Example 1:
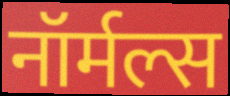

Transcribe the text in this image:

नॉर्मल्स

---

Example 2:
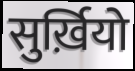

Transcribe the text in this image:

सुर्ख़ियो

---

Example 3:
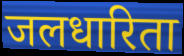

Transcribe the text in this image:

जलधारिता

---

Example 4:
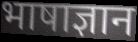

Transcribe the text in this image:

भाषाज्ञान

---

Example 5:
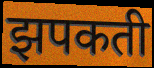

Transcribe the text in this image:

झपकती